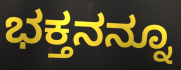
ಭಕ್ತನನ್ನೂ